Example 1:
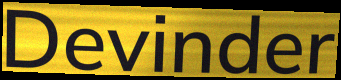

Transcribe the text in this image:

Devinder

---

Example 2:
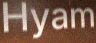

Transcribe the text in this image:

Hyam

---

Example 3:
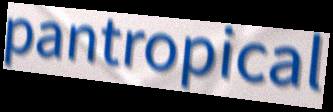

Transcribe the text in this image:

pantropical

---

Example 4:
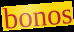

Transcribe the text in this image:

bonos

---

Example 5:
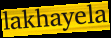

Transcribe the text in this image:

lakhayela